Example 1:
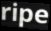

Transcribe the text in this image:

ripe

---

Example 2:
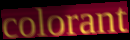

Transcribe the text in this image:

colorant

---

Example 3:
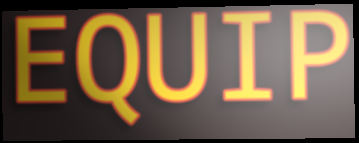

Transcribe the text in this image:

EQUIP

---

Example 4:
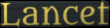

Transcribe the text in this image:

Lancet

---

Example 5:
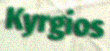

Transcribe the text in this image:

Kyrgios